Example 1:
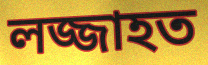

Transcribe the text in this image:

লজ্জাহত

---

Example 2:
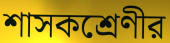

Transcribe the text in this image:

শাসকশ্রেণীর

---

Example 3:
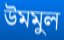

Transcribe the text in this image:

উমমুল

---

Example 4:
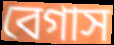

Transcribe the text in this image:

বেগাস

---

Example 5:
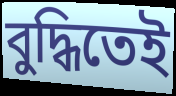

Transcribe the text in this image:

বুদ্ধিতেই